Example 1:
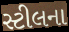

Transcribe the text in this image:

સ્ટીલના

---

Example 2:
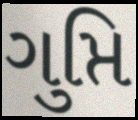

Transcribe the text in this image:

ગુપ્તિ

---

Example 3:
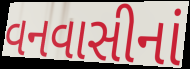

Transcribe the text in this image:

વનવાસીનાં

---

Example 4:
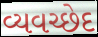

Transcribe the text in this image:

વ્યવચ્છેદ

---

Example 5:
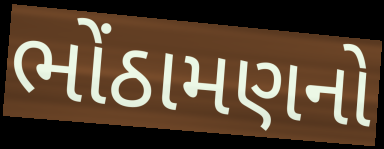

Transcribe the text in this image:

ભોંઠામણનો